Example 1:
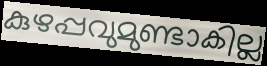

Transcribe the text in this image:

കുഴപ്പവുമുണ്ടാകില്ല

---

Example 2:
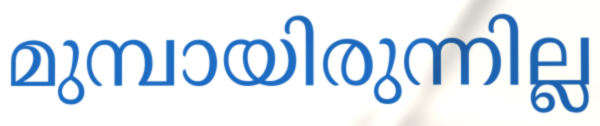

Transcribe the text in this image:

മുമ്പായിരുന്നില്ല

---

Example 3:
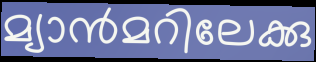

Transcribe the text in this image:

മ്യാൻമറിലേക്കു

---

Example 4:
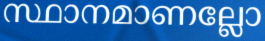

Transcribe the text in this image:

സ്ഥാനമാണല്ലോ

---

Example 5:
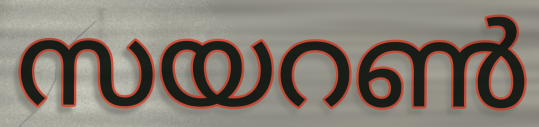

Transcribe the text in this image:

സയറൺ